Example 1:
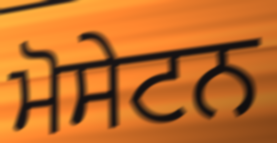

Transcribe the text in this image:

ਮੋਸੇਟਨ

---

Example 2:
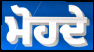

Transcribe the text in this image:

ਮੋਹਦੇ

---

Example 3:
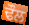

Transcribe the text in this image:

ਢੌਲ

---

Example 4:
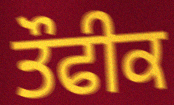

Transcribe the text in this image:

ਤੌਫੀਕ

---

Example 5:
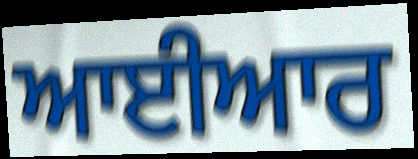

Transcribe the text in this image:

ਆਈਆਰ